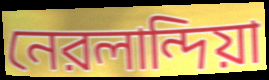
নেরলান্দিয়া